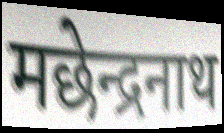
मछेन्द्रनाथ